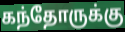
கந்தோருக்கு